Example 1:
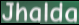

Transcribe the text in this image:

Jhalda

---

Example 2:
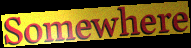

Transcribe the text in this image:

Somewhere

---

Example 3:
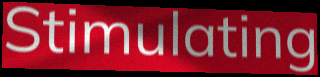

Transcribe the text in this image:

Stimulating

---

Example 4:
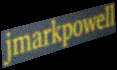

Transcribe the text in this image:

jmarkpowell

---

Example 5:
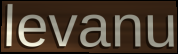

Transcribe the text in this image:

levanu